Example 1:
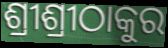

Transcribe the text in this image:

ଶ୍ରୀଶ୍ରୀଠାକୁର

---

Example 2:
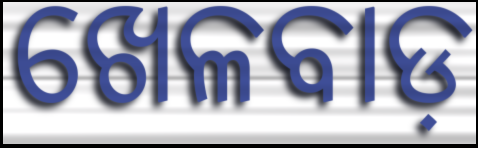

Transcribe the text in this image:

ଖେଳବାଡ଼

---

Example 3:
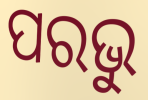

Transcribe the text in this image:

ପରଭୁ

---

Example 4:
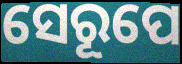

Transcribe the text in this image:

ସେରୂପେ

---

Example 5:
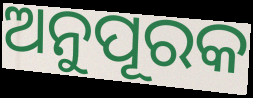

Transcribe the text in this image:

ଅନୁପୂରକ